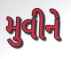
મુવીને